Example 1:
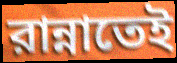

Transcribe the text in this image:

রান্নাতেই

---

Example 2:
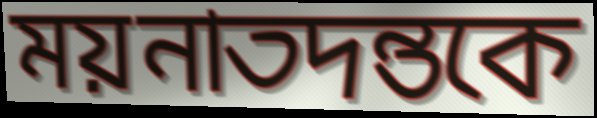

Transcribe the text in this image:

ময়নাতদন্তকে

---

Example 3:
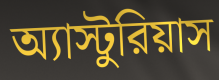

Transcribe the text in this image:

অ্যাস্টুরিয়াস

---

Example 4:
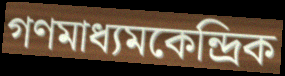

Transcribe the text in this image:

গণমাধ্যমকেন্দ্রিক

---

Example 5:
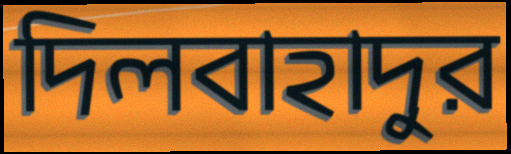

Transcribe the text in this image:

দিলবাহাদুর